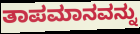
ತಾಪಮಾನವನ್ನು